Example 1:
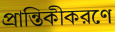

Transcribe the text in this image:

প্রান্তিকীকরণে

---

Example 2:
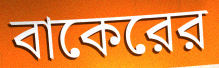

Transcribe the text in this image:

বাকেরের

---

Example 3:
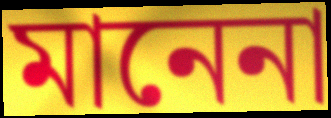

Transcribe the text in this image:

মানেনা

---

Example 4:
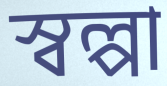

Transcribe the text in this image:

স্বল্পা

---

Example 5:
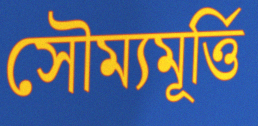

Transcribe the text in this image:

সৌম্যমূর্ত্তি